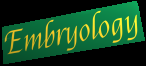
Embryology